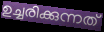
ഉച്ചരിക്കുന്നത്